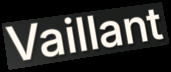
Vaillant